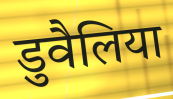
डुवैलिया